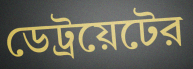
ডেট্রয়েটের